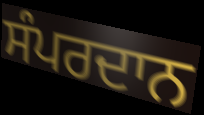
ਸੰਪਰਦਾਨ